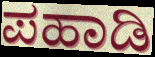
ಪಹಾಡಿ